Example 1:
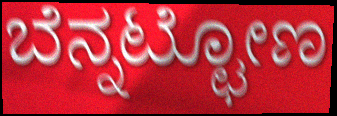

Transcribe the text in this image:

ಬೆನ್ನಟ್ಟೋಣ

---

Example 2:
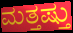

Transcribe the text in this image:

ಮತ್ತಷ್ತು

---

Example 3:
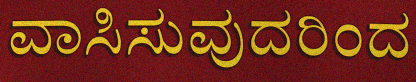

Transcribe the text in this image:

ವಾಸಿಸುವುದರಿಂದ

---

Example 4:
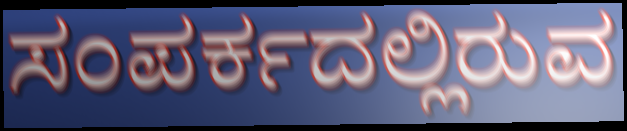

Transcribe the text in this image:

ಸಂಪರ್ಕದಲ್ಲಿರುವ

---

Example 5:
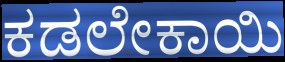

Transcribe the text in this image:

ಕಡಲೇಕಾಯಿ